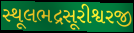
સ્થૂલભદ્રસૂરીશ્વરજી